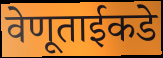
वेणूताईकडे